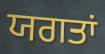
ਯਗਤਾਂ